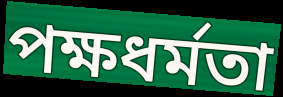
পক্ষধর্মতা